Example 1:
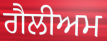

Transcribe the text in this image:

ਗੈਲੀਅਮ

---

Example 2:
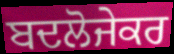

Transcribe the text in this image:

ਬਦਲੋਜੇਕਰ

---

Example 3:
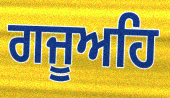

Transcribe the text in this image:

ਗਜੂਅਹਿ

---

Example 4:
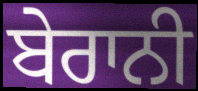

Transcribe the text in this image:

ਬੇਰਾਨੀ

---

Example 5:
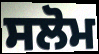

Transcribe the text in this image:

ਸਲੋਮ